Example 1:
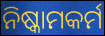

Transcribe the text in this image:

ନିଷ୍କାମକର୍ମ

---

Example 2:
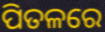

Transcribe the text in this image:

ପିତଳରେ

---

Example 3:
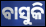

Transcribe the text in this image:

ବାସୁକି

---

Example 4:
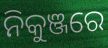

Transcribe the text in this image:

ନିକୁଞ୍ଜରେ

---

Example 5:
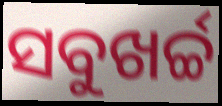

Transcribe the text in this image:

ସବୁଖର୍ଚ୍ଚ